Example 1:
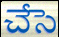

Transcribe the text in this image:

చేసె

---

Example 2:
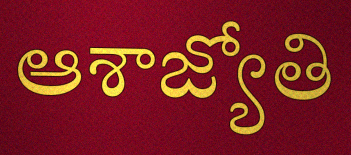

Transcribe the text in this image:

ఆశాజ్యోతి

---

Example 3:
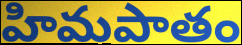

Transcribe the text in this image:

హిమపాతం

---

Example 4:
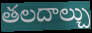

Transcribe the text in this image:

తలదాల్చు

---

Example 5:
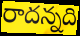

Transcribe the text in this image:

రాదన్నది